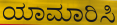
ಯಾಮಾರಿಸಿ